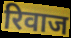
रिवाज